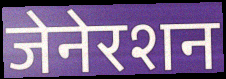
जेनेरशन